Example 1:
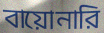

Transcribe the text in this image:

বায়োনারি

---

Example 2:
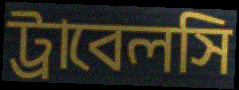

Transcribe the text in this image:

ট্রাবেলসি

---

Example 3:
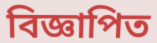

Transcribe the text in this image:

বিজ্ঞাপিত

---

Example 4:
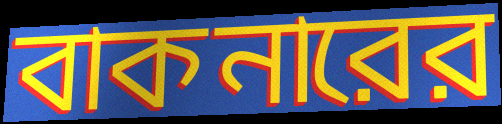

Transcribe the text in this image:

বাকনারের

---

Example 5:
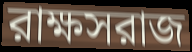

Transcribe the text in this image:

রাক্ষসরাজ